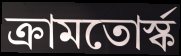
ক্রামতোর্স্ক